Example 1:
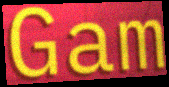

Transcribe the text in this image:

Gam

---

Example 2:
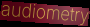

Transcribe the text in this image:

audiometry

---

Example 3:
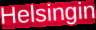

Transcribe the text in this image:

Helsingin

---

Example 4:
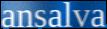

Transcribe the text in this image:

ansalva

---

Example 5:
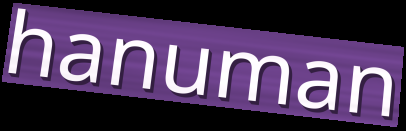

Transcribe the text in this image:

hanuman